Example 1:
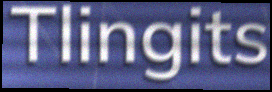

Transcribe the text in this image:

Tlingits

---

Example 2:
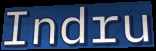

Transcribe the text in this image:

Indru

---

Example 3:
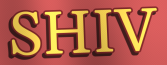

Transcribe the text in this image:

SHIV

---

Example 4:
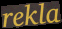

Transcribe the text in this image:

rekla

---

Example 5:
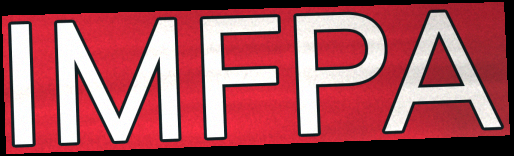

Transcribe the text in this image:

IMFPA